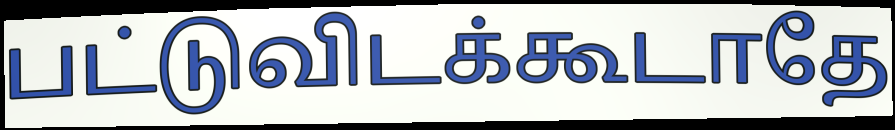
பட்டுவிடக்கூடாதே